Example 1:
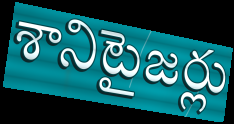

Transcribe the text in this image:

శానిటైజర్లు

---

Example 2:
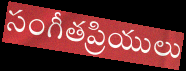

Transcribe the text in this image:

సంగీతప్రియులు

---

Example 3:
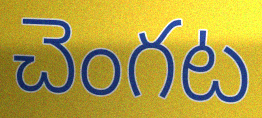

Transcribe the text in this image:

చెంగట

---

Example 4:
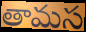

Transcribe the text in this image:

తామస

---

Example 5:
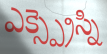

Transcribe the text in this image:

ఎక్స్ప్రెస్ని